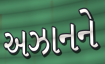
અઝાનને